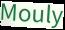
Mouly